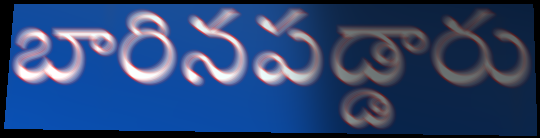
బారినపడ్డారు